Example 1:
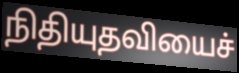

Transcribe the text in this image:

நிதியுதவியைச்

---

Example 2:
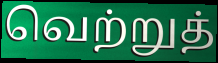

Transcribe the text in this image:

வெற்றுத்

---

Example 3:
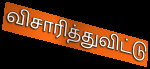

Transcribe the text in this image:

விசாரித்துவிட்டு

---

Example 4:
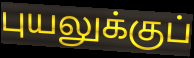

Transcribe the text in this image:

புயலுக்குப்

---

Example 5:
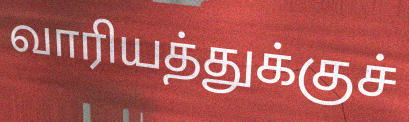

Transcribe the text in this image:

வாரியத்துக்குச்